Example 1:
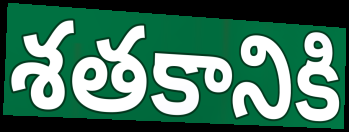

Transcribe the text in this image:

శతకానికి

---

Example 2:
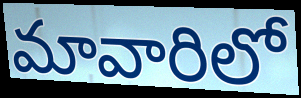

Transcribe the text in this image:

మావారిలో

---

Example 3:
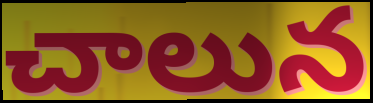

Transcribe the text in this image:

చాలున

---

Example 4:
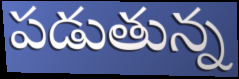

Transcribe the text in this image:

పడుతున్న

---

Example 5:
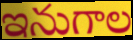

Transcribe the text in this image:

ఇనుగాల